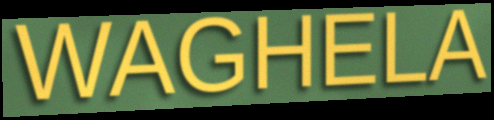
WAGHELA